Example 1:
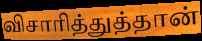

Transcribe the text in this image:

விசாரித்துத்தான்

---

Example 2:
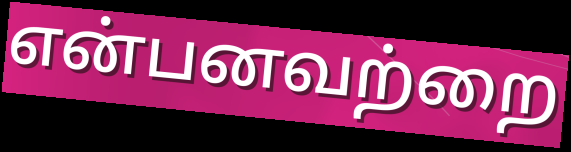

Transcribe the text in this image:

என்பனவற்றை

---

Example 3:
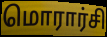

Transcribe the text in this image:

மொரார்சி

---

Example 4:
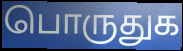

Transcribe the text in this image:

பொருதுக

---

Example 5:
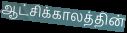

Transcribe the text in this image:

ஆட்சிக்காலத்தின்